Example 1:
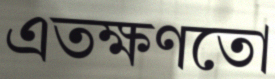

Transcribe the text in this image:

এতক্ষণতো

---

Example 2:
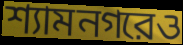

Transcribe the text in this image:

শ্যামনগরেও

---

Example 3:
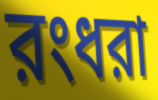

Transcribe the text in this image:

রংধরা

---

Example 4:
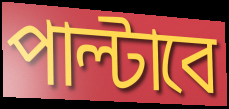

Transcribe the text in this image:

পাল্টাবে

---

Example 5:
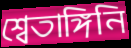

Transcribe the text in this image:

শ্বেতাঙ্গিনি